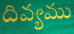
దివ్యము